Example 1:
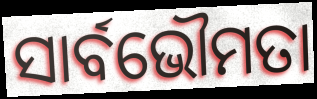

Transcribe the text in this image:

ସାର୍ବଭୌମତା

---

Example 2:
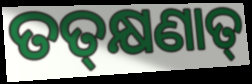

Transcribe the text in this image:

ତତ୍‍କ୍ଷଣାତ୍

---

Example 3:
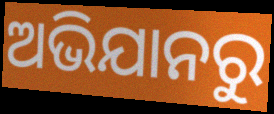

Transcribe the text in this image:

ଅଭିଯାନରୁ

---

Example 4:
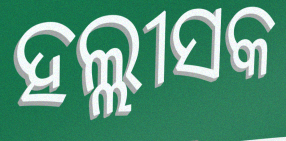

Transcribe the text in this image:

ହଲ୍ଲୀସକ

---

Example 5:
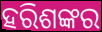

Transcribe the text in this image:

ହରିଶଙ୍କର